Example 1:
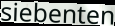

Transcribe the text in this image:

siebenten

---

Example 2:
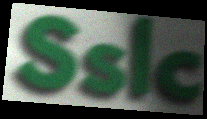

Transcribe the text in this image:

Sslc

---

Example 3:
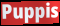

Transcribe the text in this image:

Puppis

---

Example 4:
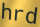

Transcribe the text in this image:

hrd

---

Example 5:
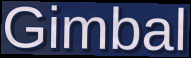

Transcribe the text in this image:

Gimbal